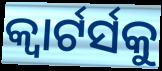
କ୍ୱାର୍ଟର୍ସକୁ